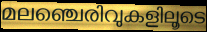
മലഞ്ചെരിവുകളിലൂടെ